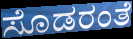
ಸೊಡರಂತೆ